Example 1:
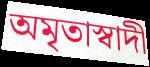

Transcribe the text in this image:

অমৃতাস্বাদী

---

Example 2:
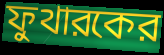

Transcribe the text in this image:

ফুথারকের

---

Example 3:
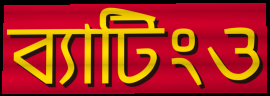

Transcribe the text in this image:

ব্যাটিংও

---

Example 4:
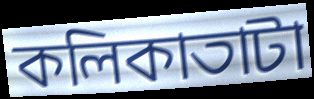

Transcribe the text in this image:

কলিকাতাটা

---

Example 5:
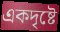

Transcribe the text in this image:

একদৃষ্টে